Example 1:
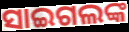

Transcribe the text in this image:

ସାଇଗଲଙ୍କ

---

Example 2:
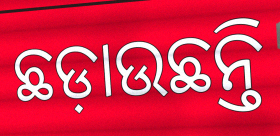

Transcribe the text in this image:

ଛଡ଼ାଉଛନ୍ତି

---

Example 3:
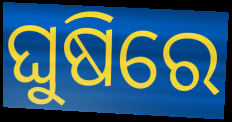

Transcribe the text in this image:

ଘୁଷିରେ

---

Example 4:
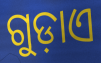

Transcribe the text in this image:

ଗୁଡ଼ାଏ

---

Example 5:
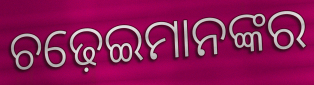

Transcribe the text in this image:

ଚଢ଼େଇମାନଙ୍କର